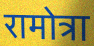
रामोत्रा